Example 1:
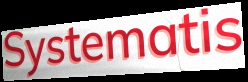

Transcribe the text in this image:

Systematis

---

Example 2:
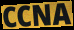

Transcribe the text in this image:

CCNA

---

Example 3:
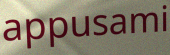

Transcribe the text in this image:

appusami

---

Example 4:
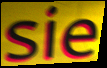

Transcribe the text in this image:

sie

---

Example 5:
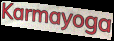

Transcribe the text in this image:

Karmayoga